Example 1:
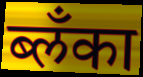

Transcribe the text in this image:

ब्लँका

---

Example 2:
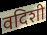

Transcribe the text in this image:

वदिशी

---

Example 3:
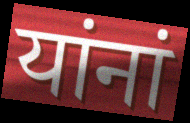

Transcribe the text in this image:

यांनां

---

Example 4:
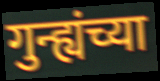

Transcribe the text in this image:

गुन्ह्यंच्या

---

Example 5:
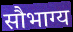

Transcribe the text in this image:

सौभाग्य